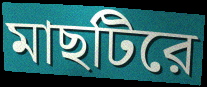
মাছটিরে